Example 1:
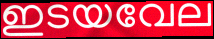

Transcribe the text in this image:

ഇടയവേല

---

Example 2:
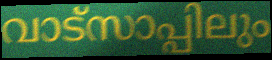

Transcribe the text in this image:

വാട്സാപ്പിലും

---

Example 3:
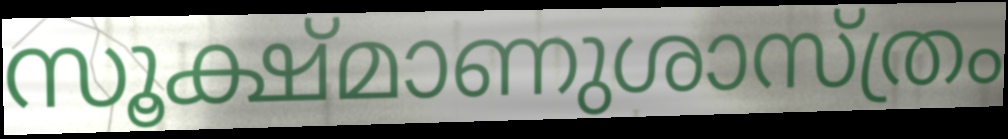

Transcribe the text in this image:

സൂക്ഷ്മാണുശാസ്ത്രം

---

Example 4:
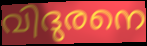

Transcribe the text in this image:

വിദുരനെ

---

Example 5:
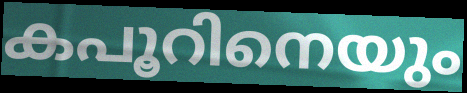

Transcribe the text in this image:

കപൂറിനെയും